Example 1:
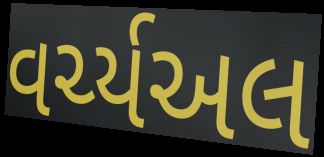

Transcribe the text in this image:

વર્ચ્યઅલ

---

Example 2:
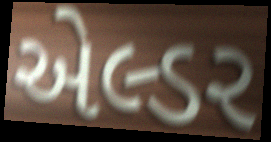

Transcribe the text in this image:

એલ્ડર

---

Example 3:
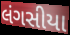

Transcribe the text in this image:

લંગસીયા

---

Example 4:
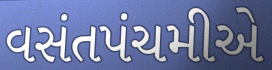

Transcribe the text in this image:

વસંતપંચમીએ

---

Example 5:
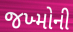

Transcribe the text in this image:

જખ્મોની